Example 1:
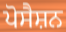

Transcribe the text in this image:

ਪੋਸੈਸ਼ਨ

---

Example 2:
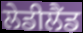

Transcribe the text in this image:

ਲੇਡੀਲੈਂਡ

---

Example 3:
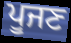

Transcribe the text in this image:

ਪੂਜਣ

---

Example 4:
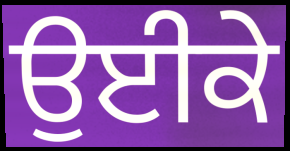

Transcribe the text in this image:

ਉਈਕੇ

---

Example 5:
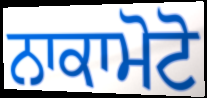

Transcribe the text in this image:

ਨਾਕਾਮੋਟੋ